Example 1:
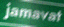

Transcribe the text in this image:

jamavat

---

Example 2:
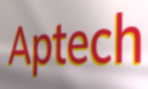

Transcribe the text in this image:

Aptech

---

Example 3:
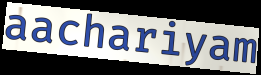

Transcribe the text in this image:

aachariyam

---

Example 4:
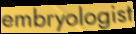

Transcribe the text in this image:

embryologist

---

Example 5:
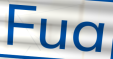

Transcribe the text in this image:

Fua